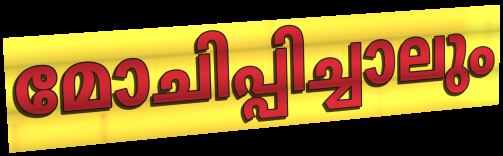
മോചിപ്പിച്ചാലും